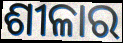
ଶୀଳାର